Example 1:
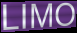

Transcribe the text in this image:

LIMO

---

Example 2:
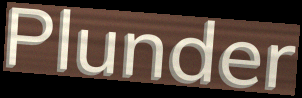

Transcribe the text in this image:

Plunder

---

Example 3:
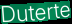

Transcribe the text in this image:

Duterte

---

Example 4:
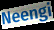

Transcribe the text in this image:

Neengi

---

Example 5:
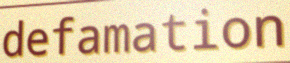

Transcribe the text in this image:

defamation